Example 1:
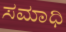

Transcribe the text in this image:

ಸಮಾಧಿ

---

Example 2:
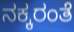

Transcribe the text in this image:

ನಕ್ಕರಂತೆ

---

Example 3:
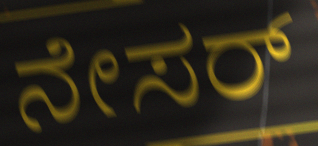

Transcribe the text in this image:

ನೇಸರ್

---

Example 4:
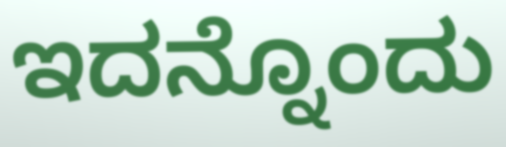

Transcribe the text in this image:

ಇದನ್ನೊಂದು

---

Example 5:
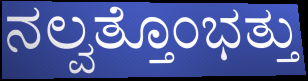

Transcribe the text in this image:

ನಲ್ವತ್ತೊಂಭತ್ತು